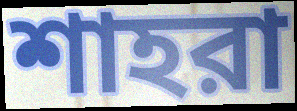
শাহরা